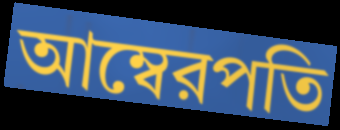
আম্বেরপতি